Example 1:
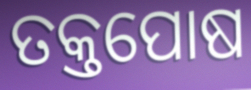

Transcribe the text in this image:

ତକ୍ତପୋଷ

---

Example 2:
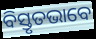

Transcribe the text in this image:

ବିସ୍ତୃତଭାବେ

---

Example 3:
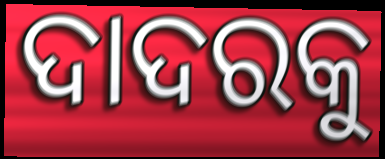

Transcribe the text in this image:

ଦାଦରକୁ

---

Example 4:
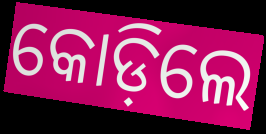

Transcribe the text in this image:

କୋଡ଼ିଲେ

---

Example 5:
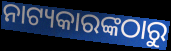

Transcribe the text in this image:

ନାଟ୍ୟକାରଙ୍କଠାରୁ